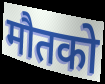
मौतको